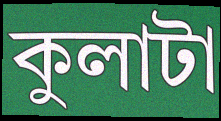
কুলাটা